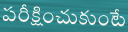
పరీక్షించుకుంటే